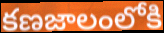
కణజాలంలోకి